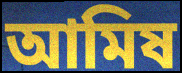
আমিষ